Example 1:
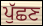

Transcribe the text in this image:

ਪੁੱਛਣ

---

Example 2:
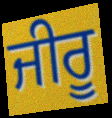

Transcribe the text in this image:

ਜੀਰੂ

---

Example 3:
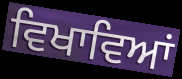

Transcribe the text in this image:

ਵਿਖਾਵਿਆਂ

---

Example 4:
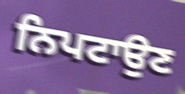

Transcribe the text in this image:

ਨਿਪਟਾਉਣ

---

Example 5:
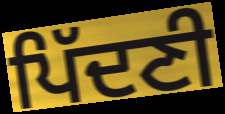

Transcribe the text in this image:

ਪਿੱਦਣੀ